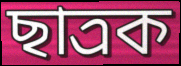
ছাত্ৰক